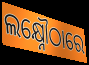
ଲକ୍ଷ୍ନୌଠାରେ